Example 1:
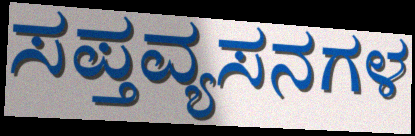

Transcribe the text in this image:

ಸಪ್ತವ್ಯಸನಗಳ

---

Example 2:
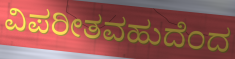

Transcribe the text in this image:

ವಿಪರೀತವಹುದೆಂದ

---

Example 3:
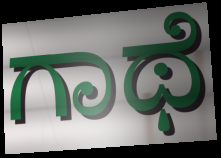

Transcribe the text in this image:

ಗಾಥೆ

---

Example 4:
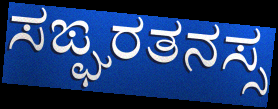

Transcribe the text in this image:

ಸಙ್ಘರತನಸ್ಸ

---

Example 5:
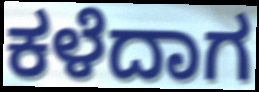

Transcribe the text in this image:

ಕಳೆದಾಗ